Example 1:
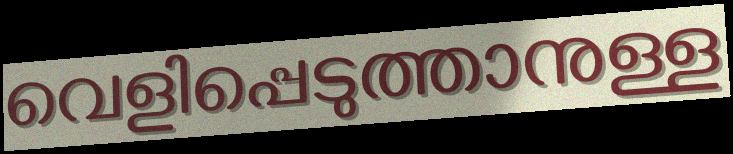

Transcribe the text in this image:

വെളിപ്പെടുത്താനുള്ള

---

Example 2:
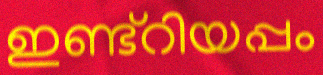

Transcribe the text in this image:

ഇണ്ട്റിയപ്പം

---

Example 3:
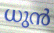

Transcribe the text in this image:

ധുൻ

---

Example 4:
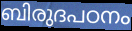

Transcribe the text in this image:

ബിരുദപഠനം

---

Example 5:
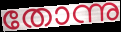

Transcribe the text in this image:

തോന്നു